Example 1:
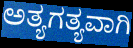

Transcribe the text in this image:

ಅತ್ಯಗತ್ಯವಾಗಿ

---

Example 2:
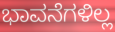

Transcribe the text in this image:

ಭಾವನೆಗಳಿಲ್ಲ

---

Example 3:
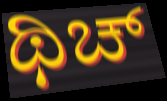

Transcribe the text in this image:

ಥಿಚ್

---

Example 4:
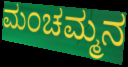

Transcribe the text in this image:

ಮಂಚಮ್ಮನ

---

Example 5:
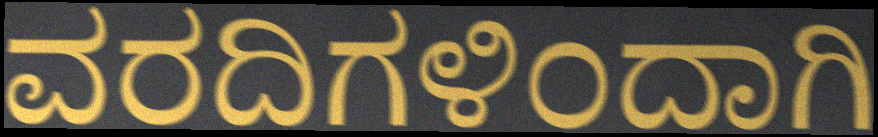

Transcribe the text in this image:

ವರದಿಗಳಿಂದಾಗಿ